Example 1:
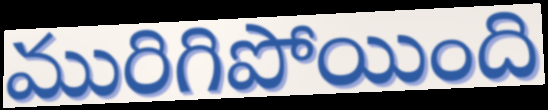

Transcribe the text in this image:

మురిగిపోయింది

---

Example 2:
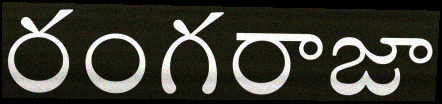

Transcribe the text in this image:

రంగరాజా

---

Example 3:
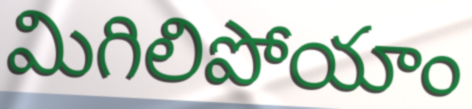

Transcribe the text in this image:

మిగిలిపోయాం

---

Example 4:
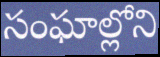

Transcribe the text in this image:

సంఘాల్లోని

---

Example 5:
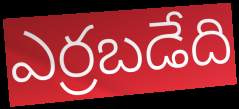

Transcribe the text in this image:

ఎర్రబడేది